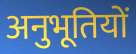
अनुभूतियों